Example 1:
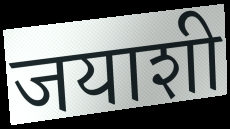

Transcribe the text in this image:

जयाशी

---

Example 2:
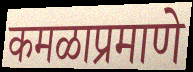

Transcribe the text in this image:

कमळाप्रमाणे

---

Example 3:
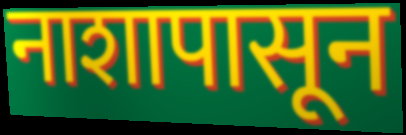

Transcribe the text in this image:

नाशापासून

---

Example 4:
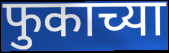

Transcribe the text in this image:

फुकाच्या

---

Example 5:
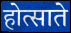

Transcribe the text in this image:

होत्साते